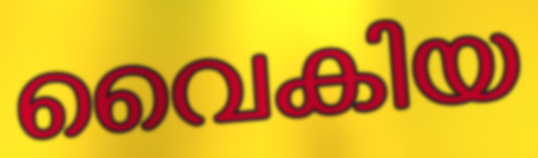
വൈകിയ